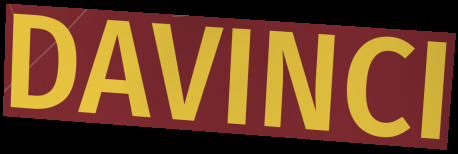
DAVINCI